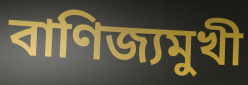
বাণিজ্যমুখী